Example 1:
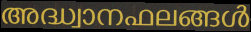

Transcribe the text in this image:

അദ്ധ്വാനഫലങ്ങൾ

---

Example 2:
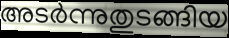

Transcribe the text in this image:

അടർന്നുതുടങ്ങിയ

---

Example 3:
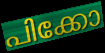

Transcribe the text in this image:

പിക്കോ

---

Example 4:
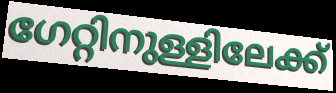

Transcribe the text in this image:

ഗേറ്റിനുള്ളിലേക്ക്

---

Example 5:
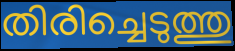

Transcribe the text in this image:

തിരിച്ചെടുത്തു